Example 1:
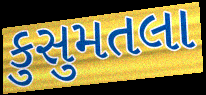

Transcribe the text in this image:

કુસુમતલા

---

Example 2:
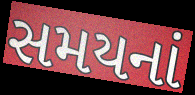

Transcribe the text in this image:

સમયનાં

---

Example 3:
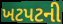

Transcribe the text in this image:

ખટપટની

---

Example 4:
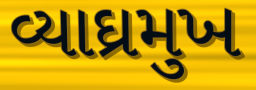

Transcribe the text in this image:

વ્યાઘ્રમુખ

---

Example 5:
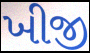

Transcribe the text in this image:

ખીજી